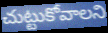
చుట్టుకోవాలని